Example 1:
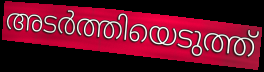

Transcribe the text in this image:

അടർത്തിയെടുത്ത്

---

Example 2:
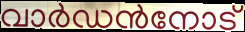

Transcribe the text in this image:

വാർഡൻനോട്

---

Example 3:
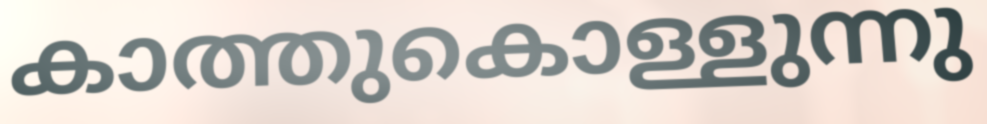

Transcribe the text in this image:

കാത്തുകൊള്ളുന്നു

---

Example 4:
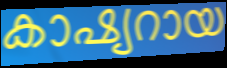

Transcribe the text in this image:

കാഷ്യറായ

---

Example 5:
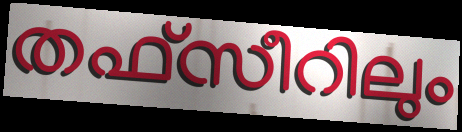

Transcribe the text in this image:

തഫ്സീറിലും